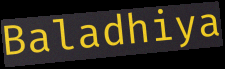
Baladhiya